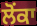
ਲੋਂਕਾ